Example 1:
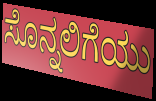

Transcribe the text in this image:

ಸೊನ್ನಲಿಗೆಯು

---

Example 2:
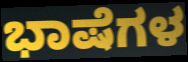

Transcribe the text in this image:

ಭಾಷೆಗಳ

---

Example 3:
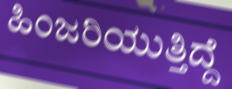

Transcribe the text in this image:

ಹಿಂಜರಿಯುತ್ತಿದ್ದೆ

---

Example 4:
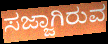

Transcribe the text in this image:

ಸಜ್ಜಾಗಿರುವ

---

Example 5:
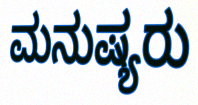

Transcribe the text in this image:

ಮನುಷ್ಯರು